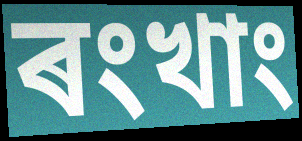
ৰংখাং